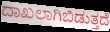
ದಾಖಲಾಗಿಬಿಡುತ್ತದೆ